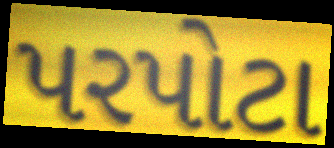
પરપોટા